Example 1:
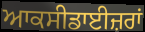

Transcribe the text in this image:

ਆਕਸੀਡਾਈਜ਼ਰਾਂ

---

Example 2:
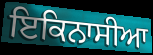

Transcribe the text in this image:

ਇਕਿਨਾਸੀਆ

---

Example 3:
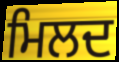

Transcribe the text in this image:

ਮਿਲਦ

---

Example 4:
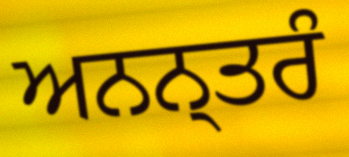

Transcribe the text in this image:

ਅਨਨ੍ਤਰੰ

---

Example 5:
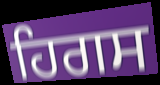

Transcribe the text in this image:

ਹਿਗਸ